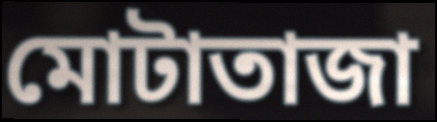
মোটাতাজা